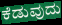
ಕೆಡುವುದು